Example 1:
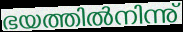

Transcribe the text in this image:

ഭയത്തിൽനിന്നു്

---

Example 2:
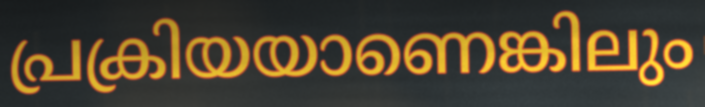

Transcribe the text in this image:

പ്രക്രിയയാണെങ്കിലും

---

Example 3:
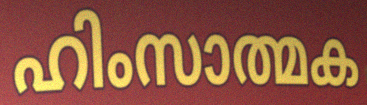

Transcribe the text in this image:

ഹിംസാത്മക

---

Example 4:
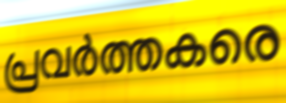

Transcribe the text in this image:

പ്രവർത്തകരെ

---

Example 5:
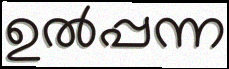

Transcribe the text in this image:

ഉൽപ്പന്ന